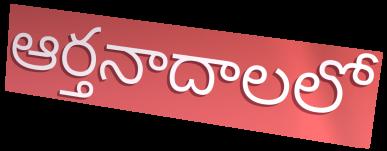
ఆర్తనాదాలలో